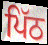
ਪਿੱਠ